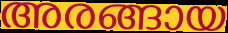
അരങ്ങായ